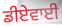
ਡੀਏਵਾਈ